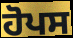
ਹੋਪਸ